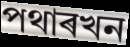
পথাৰখন